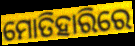
ମୋତିହାରିରେ